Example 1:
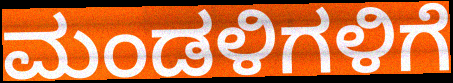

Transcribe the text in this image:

ಮಂಡಳಿಗಳಿಗೆ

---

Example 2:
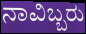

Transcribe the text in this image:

ನಾವಿಬ್ಬರು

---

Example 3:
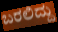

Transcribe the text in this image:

ಬರಲಿದ್ದು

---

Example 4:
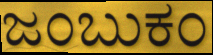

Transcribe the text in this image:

ಜಂಬುಕಂ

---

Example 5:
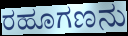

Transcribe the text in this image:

ರಹೂಗಣನು